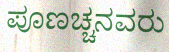
ಪೂಣಚ್ಚನವರು